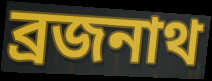
ব্রজনাথ